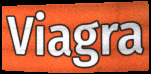
Viagra